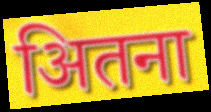
अितना